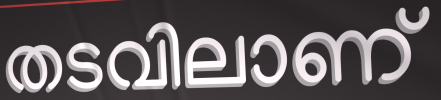
തടവിലാണ്